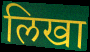
लिखा